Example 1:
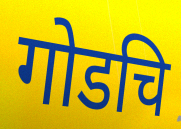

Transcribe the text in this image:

गोडचि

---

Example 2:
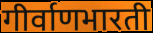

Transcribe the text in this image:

गीर्वाणभारती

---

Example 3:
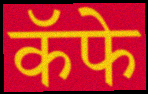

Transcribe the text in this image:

कॅफे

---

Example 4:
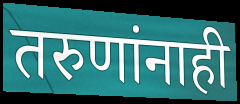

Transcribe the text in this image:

तरुणांनाही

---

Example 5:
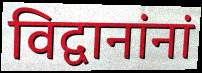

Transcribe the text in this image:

विद्वानांनां